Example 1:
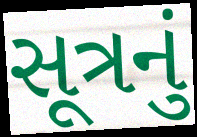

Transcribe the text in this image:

સૂત્રનું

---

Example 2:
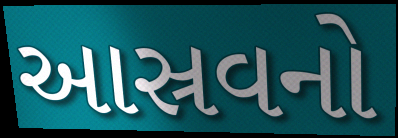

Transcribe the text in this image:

આસ્રવનો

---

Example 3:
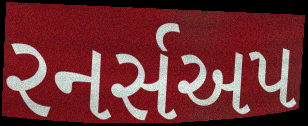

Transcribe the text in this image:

રનર્સઅપ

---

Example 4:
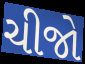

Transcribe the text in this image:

ચીજો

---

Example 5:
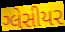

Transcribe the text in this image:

ગ્લેસીયર